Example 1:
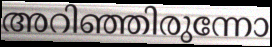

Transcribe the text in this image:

അറിഞ്ഞിരുന്നോ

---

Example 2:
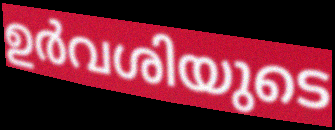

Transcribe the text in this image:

ഉർവശിയുടെ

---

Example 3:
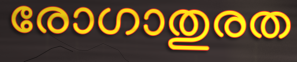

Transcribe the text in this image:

രോഗാതുരത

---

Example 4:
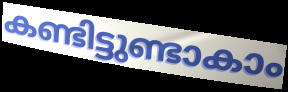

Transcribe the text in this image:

കണ്ടിട്ടുണ്ടാകാം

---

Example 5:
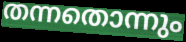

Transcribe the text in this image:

തന്നതൊന്നും